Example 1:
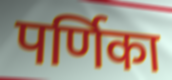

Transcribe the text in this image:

पर्णिका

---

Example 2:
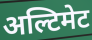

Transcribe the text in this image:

अल्टिमेट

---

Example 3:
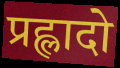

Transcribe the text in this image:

प्रह्लादो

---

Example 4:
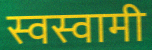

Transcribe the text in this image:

स्वस्वामी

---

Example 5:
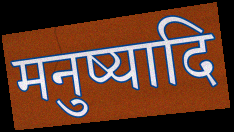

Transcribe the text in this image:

मनुष्यादि